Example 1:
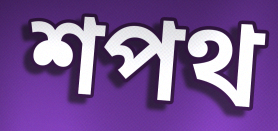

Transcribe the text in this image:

শপথ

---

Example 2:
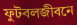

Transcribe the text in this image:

ফুটবলজীবনে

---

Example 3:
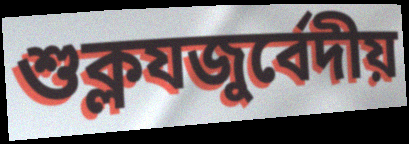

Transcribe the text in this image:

শুক্লযজুর্বেদীয়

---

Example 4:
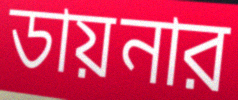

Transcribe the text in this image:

ডায়নার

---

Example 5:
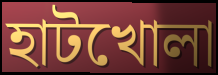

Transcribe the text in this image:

হাটখোলা